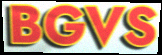
BGVS